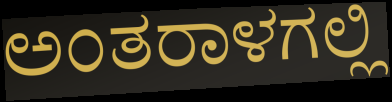
ಅಂತರಾಳಗಲ್ಲಿ